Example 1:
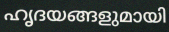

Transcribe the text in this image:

ഹൃദയങ്ങളുമായി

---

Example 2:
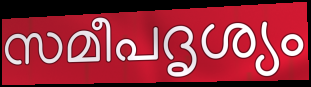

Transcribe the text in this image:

സമീപദൃശ്യം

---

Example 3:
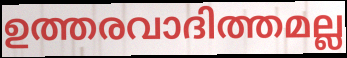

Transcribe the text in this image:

ഉത്തരവാദിത്തമല്ല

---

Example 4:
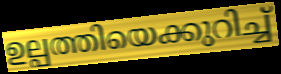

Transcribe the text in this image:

ഉല്പത്തിയെക്കുറിച്ച്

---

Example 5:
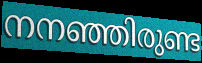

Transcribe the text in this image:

നനഞ്ഞിരുണ്ട